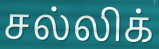
சல்லிக்